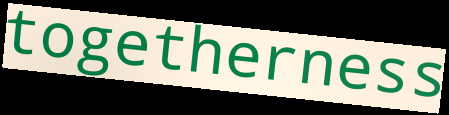
togetherness